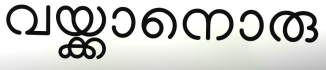
വയ്ക്കാനൊരു